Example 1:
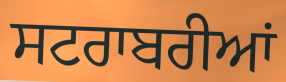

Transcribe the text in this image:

ਸਟਰਾਬਰੀਆਂ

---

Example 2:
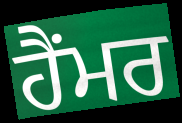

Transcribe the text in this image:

ਹੈਂਮਰ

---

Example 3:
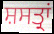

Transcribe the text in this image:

ਸ਼ਸਤ੍ਰਾਂ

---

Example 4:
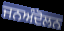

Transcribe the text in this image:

ਜਨਅੰਦੋਲਨ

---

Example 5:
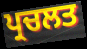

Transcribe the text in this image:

ਪ੍ਰਚਲਤ